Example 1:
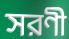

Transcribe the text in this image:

সরণী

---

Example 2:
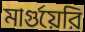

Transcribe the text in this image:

মার্গুয়েরি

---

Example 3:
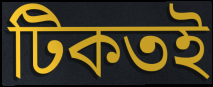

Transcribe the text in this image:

টিকতই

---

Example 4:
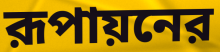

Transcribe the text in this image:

রূপায়নের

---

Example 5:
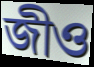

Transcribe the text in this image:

জীও